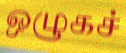
ஒழுகச்